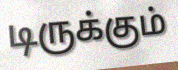
டிருக்கும்